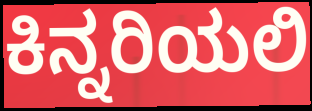
ಕಿನ್ನರಿಯಲಿ